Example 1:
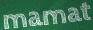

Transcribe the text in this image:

mamat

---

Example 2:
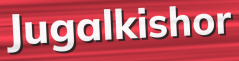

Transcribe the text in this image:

Jugalkishor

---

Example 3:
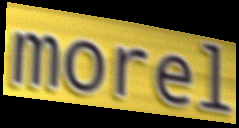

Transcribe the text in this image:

morel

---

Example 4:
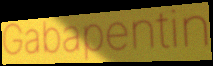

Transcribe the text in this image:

Gabapentin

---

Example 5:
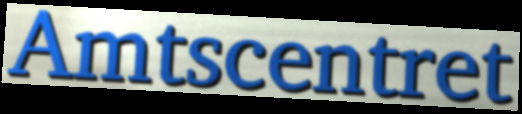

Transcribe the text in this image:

Amtscentret